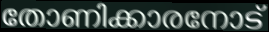
തോണിക്കാരനോട്